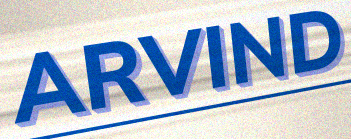
ARVIND